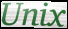
Unix